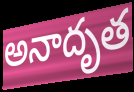
అనాదృత